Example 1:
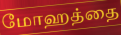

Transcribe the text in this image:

மோஹத்தை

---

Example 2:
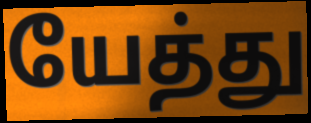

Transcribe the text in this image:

யேத்து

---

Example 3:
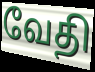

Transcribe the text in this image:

வேதி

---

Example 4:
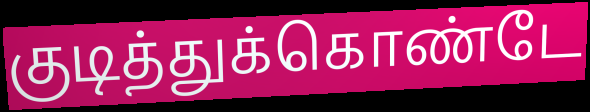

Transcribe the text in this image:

குடித்துக்கொண்டே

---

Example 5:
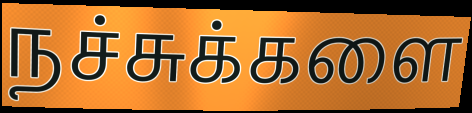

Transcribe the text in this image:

நச்சுக்களை